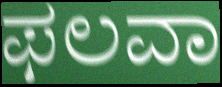
ಫಲವಾ